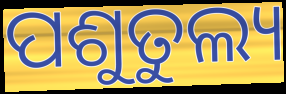
ପଶୁତୁଲ୍ୟ